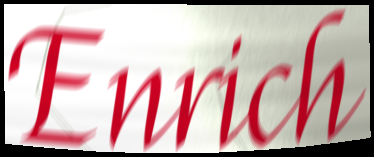
Enrich